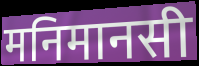
मनिमानसी